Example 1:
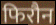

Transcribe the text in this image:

फिरौन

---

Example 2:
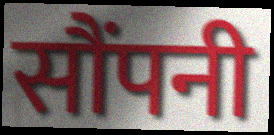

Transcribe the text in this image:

सौंपनी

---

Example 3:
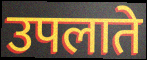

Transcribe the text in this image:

उपलाते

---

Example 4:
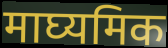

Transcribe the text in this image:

माघ्यमिक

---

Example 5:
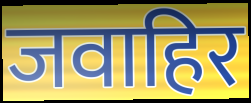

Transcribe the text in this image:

जवाहिर